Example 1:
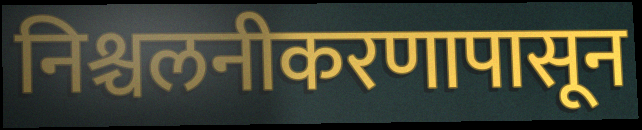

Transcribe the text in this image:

निश्चलनीकरणापासून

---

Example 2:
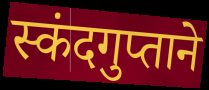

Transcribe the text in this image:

स्कंदगुप्ताने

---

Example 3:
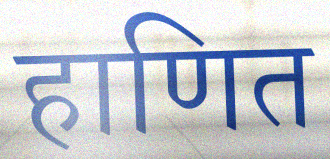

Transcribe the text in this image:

हाणित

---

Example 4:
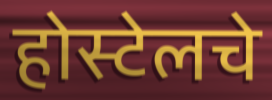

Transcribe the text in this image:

होस्टेलचे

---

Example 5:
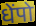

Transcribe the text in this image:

धेंपो